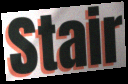
Stair